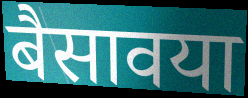
बैसावया